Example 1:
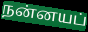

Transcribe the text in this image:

நன்னயப்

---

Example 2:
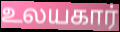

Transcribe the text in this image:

உலயகார்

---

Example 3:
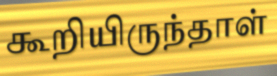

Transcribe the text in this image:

கூறியிருந்தாள்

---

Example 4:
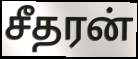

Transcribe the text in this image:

சீதரன்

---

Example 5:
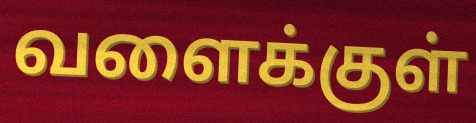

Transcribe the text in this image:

வளைக்குள்